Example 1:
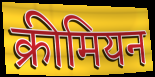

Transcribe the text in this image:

क्रीमियन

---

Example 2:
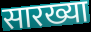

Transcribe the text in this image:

सारख्या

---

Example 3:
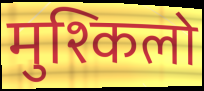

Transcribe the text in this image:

मुश्किलो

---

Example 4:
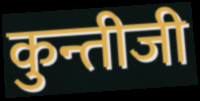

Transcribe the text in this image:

कुन्तीजी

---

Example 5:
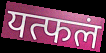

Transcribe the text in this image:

यत्फलं